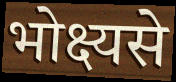
भोक्ष्यसे